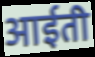
आईती